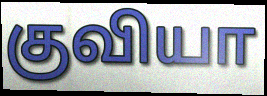
குவியா